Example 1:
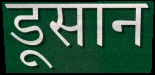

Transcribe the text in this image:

डूसान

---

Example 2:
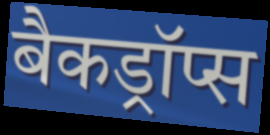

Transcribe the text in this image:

बैकड्रॉप्स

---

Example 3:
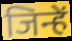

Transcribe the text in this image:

जिन्‍हें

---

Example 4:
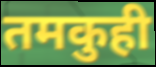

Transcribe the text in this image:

तमकुही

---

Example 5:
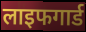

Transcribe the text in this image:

लाइफगार्ड